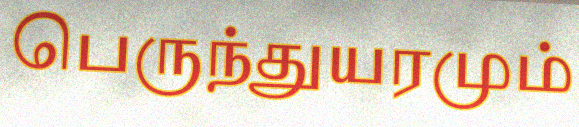
பெருந்துயரமும்